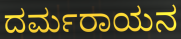
ದರ್ಮರಾಯನ